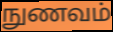
நுணவம்